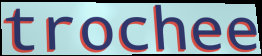
trochee